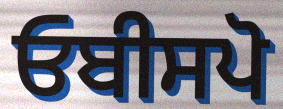
ਓਬੀਸਪੋ